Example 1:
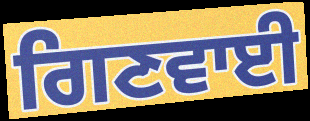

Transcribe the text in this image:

ਗਿਣਵਾਈ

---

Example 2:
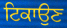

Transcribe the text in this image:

ਟਿਕਾਉਣ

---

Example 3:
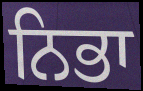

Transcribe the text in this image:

ਨਿਭਾ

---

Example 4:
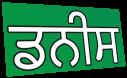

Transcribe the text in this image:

ਡਨੀਸ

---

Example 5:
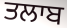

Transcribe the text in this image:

ਤਲਾਬ